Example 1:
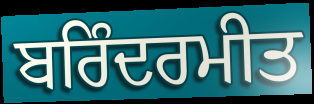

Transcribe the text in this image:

ਬਰਿੰਦਰਮੀਤ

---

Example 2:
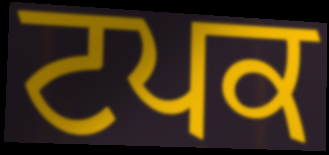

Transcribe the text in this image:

ਟਪਕ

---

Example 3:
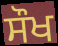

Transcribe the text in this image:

ਸੌਖ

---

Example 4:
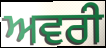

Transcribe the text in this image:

ਅਵਰੀ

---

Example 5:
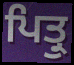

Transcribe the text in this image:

ਪਿਤ੍ਰੁ